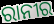
ରାନୀର